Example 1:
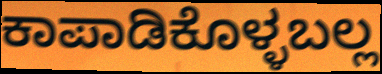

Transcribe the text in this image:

ಕಾಪಾಡಿಕೊಳ್ಳಬಲ್ಲ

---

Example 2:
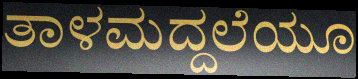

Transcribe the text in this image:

ತಾಳಮದ್ದಲೆಯೂ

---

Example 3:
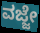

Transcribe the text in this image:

ವಜ್ಜೇ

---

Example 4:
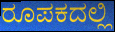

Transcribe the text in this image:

ರೂಪಕದಲ್ಲಿ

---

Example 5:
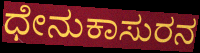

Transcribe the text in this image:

ಧೇನುಕಾಸುರನ